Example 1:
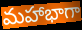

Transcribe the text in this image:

మహాభాగా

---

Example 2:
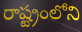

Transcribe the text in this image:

రాష్ట్రంలోని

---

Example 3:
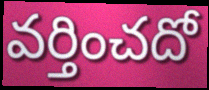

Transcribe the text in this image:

వర్తించదో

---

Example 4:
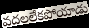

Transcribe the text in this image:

వదలలేకపోయాడు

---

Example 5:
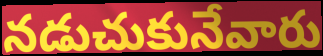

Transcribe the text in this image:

నడుచుకునేవారు